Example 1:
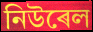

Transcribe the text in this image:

নিউৰেল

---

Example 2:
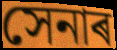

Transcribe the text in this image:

সেনাৰ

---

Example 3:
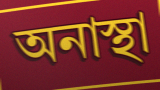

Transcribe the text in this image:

অনাস্থা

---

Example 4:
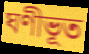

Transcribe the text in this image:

ঘণীভূত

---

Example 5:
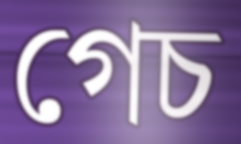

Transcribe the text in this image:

গেচ